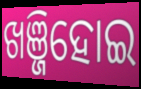
ଖଞ୍ଜିହୋଇ